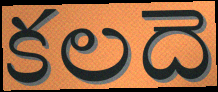
కలదె